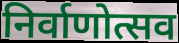
निर्वाणोत्सव